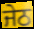
ਜੇਠ